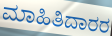
ಮಾಹಿತಿದಾರರ